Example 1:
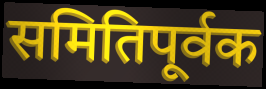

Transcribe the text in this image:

समितिपूर्वक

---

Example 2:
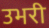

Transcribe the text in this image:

उभरी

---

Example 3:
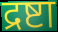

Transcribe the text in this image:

द्रष्टा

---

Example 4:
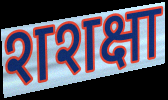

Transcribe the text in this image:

शशक्षा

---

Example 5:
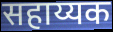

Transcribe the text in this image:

सहाय्यक